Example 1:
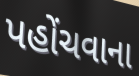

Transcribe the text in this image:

પહોંચવાના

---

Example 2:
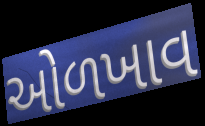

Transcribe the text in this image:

ઓળખાવ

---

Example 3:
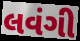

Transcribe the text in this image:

લવંગી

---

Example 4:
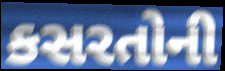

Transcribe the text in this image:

કસરતોની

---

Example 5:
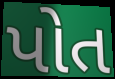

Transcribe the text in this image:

પોત